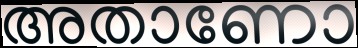
അതാണോ